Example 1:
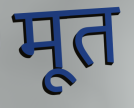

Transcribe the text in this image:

मूत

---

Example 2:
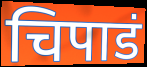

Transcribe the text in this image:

चिपाडं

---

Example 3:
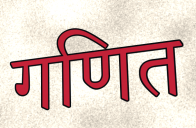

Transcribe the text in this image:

गणित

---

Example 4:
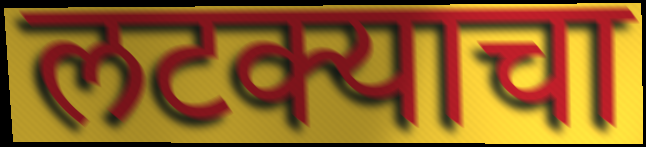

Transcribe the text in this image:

लटक्याचा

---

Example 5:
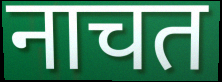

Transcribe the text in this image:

नाचत